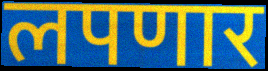
लपणार